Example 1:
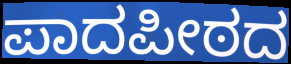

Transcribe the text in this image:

ಪಾದಪೀಠದ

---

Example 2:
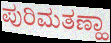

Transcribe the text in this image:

ಪುರಿಮತಣ್ಹಾ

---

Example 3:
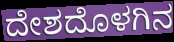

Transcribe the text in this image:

ದೇಶದೊಳಗಿನ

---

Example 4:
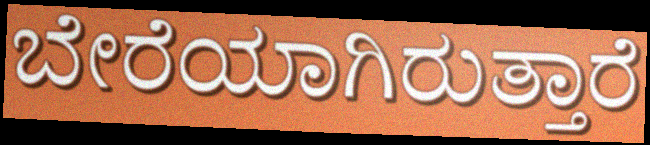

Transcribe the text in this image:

ಬೇರೆಯಾಗಿರುತ್ತಾರೆ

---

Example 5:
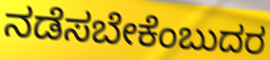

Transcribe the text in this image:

ನಡೆಸಬೇಕೆಂಬುದರ